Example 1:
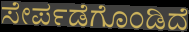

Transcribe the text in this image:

ಸೇರ್ಪಡೆಗೊಂಡಿದೆ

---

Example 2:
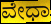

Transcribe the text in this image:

ವೇಧಾ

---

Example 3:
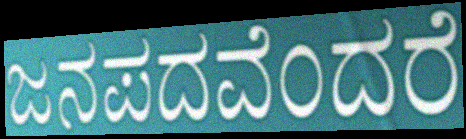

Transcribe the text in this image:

ಜನಪದವೆಂದರೆ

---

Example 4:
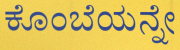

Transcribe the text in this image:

ಕೊಂಬೆಯನ್ನೇ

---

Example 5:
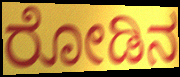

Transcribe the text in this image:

ರೋಡಿನ